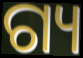
ଗ୍ୟ